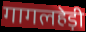
गागलहेड़ी